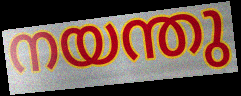
നയന്തു